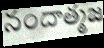
నందాత్మజ